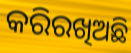
କରିରଖିଅଛି